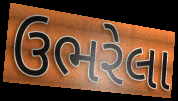
ઉભરેલા